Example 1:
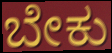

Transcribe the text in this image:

ಬೇಕು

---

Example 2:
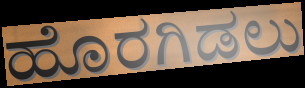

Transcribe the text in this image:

ಹೊರಗಿಡಲು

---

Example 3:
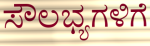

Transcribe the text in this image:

ಸೌಲಭ್ಯಗಳಿಗೆ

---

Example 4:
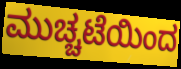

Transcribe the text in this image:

ಮುಚ್ಚಟೆಯಿಂದ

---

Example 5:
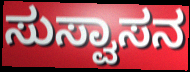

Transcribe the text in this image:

ಸುಸ್ವಾಸನ